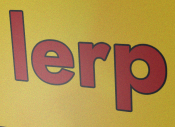
lerp